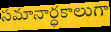
సమానార్ధకాలుగా